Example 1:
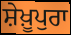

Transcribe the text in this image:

ਸ਼ੇਖ਼ੂਪੁਰਾ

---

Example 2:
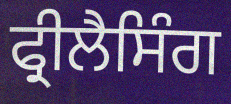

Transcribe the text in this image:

ਫ੍ਰੀਲੈਸਿੰਗ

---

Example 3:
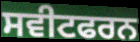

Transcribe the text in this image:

ਸਵੀਟਫਰਨ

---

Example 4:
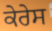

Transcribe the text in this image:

ਕੇਰੇਸ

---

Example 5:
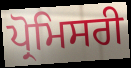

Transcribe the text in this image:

ਪ੍ਰੋਮਿਸਰੀ